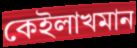
কেইলাখমান